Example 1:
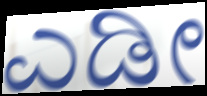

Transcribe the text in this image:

ಎಡೀ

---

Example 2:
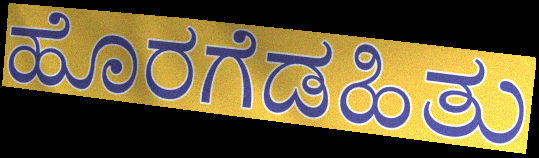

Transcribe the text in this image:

ಹೊರಗೆಡಹಿತು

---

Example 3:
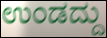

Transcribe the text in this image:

ಉಂಡದ್ದು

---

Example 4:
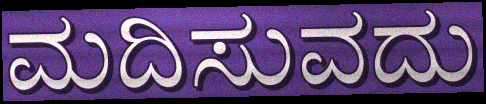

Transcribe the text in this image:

ಮದಿಸುವದು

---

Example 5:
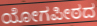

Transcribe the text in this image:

ಯೋಗಪೀಠದ